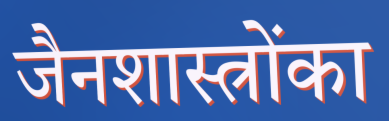
जैनशास्त्रोंका